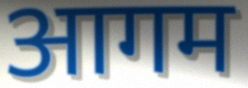
आगम